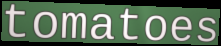
tomatoes